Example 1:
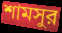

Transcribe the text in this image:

শামসুর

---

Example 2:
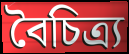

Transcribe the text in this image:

বৈচিত্র্য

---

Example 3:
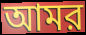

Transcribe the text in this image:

আমর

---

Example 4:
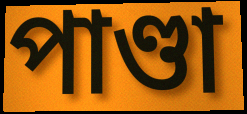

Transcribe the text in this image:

পাণ্ডা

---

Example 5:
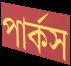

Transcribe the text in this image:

পার্কস